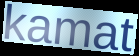
kamat